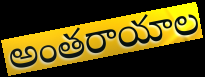
అంతరాయాల